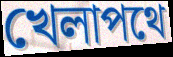
খেলাপথে